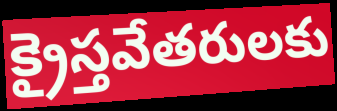
క్రైస్తవేతరులకు